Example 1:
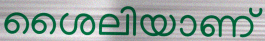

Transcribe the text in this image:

ശൈലിയാണ്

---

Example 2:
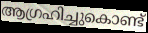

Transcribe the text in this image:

ആഗ്രഹിച്ചുകൊണ്ട്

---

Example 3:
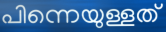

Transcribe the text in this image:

പിന്നെയുള്ളത്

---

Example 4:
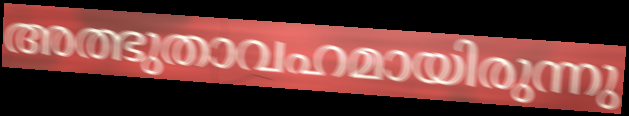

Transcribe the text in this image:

അത്ഭുതാവഹമായിരുന്നു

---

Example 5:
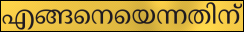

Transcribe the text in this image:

എങ്ങനെയെന്നതിന്